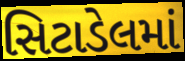
સિટાડેલમાં